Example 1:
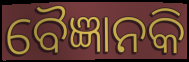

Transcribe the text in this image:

ବୈଜ୍ଞାନକି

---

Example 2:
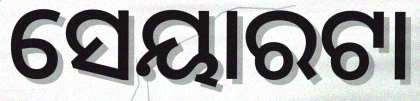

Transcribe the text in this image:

ସେୟାରଟା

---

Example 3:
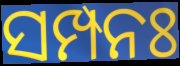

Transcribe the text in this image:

ସମ୍ପନଃ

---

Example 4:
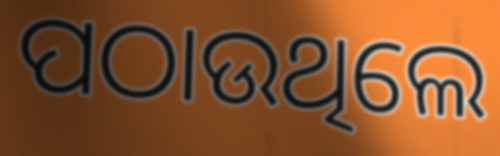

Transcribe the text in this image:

ପଠାଉଥିଲେ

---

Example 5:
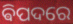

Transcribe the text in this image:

ଵିପଦରେ